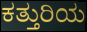
ಕತ್ತುರಿಯ